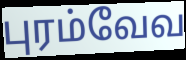
புரம்வேவ